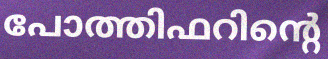
പോത്തിഫറിന്റെ